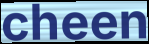
cheen